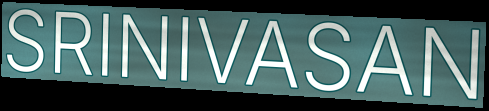
SRINIVASAN